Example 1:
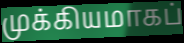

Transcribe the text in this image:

முக்கியமாகப்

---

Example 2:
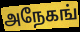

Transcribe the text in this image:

அநேகங்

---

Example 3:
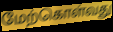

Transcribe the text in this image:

மேற்கொள்வது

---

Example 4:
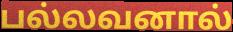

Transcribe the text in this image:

பல்லவனால்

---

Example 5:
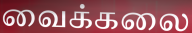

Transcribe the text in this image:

வைக்கலை